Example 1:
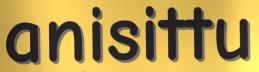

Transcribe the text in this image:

anisittu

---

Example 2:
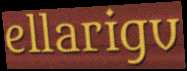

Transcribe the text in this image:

ellarigu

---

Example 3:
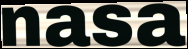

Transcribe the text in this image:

nasa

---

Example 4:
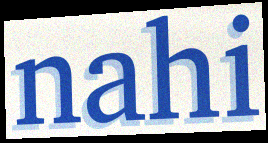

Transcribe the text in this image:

nahi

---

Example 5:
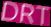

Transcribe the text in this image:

DRT